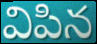
విపిన